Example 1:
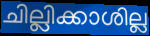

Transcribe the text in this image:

ചില്ലിക്കാശില്ല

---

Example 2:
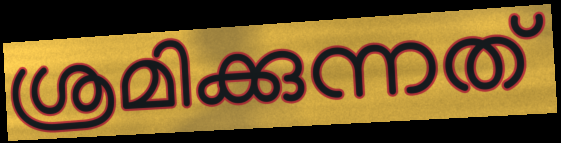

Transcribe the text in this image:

ശ്രമിക്കുന്നത്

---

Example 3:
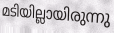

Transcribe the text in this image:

മടിയില്ലായിരുന്നു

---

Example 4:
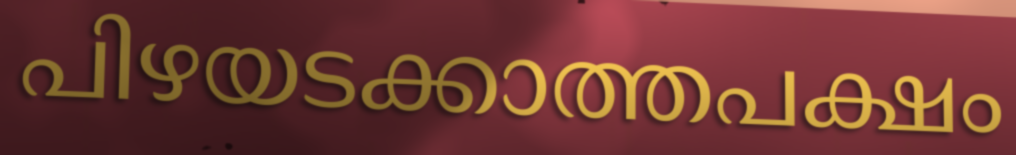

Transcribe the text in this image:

പിഴയടക്കാത്തപക്ഷം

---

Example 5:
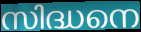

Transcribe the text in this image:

സിദ്ധനെ